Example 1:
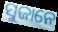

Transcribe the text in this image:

ସୁଜାନେ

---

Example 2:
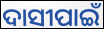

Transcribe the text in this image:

ଦାସୀପାଇଁ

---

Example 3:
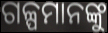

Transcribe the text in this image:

ଗଳ୍ପମାନଙ୍କୁ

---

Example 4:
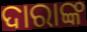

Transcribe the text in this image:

ଦାରାଙ୍କ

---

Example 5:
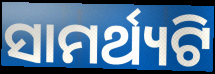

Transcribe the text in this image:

ସାମର୍ଥ୍ୟଟି